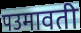
पउमावती